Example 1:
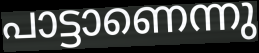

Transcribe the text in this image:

പാട്ടാണെന്നു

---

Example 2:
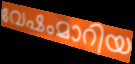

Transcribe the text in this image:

വേഷംമാറിയ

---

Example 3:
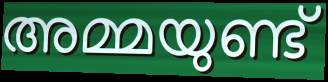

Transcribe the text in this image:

അമ്മയുണ്ട്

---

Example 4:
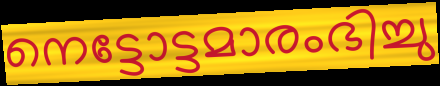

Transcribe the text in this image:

നെട്ടോട്ടമാരംഭിച്ചു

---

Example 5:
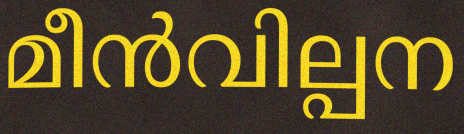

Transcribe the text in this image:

മീൻവില്പന